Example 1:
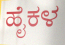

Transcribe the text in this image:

ಹೈಕಳ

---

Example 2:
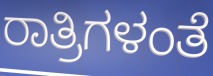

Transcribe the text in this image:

ರಾತ್ರಿಗಳಂತೆ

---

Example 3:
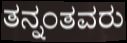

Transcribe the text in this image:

ತನ್ನಂತವರು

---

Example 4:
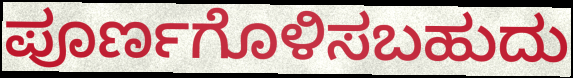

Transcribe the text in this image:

ಪೂರ್ಣಗೊಳಿಸಬಹುದು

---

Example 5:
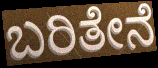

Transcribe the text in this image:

ಬರಿತೇನೆ